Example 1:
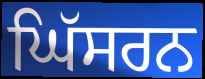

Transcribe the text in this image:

ਘਿੱਸਰਨ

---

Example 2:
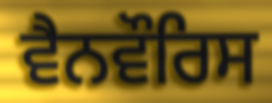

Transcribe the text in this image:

ਵੈਨਵੌਰਿਸ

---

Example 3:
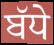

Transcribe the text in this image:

ਬੱਧੇ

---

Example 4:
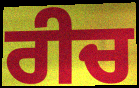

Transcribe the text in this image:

ਰੀਚ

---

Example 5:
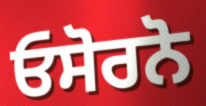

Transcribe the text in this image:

ਓਸੋਰਨੋ